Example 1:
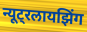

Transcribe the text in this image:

न्यूट्रलायझिंग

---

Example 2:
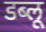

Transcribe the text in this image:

डब्लू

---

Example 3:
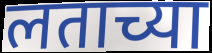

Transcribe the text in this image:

लताच्या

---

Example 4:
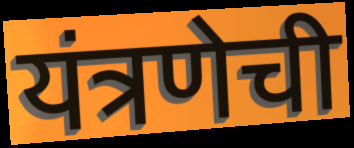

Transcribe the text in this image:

यंत्रणेची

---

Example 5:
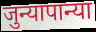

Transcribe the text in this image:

जुन्यापान्या